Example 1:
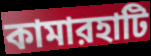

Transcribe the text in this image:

কামারহাটি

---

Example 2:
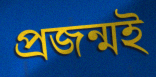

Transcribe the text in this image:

প্রজন্মই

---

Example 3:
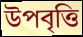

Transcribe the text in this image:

উপবৃত্তি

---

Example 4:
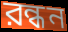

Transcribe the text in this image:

রন্ধন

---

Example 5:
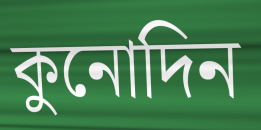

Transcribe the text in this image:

কুনোদিন